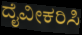
ದೈವೀಕರಿಸಿ